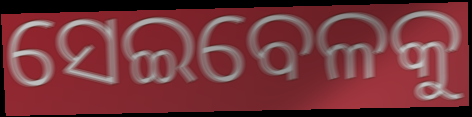
ସେଇବେଳକୁ